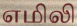
எமிலி